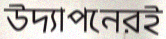
উদ্যাপনেরই